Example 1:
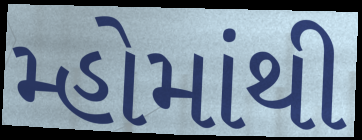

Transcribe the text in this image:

મ્હોમાંથી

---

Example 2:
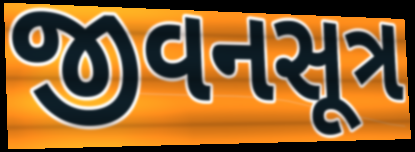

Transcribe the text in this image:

જીવનસૂત્ર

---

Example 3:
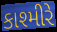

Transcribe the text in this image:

કાશ્મીરે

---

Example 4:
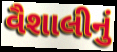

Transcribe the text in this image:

વૈશાલીનું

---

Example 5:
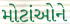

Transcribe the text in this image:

મોટાંઓને